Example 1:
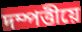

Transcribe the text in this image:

দম্পত্তীয়ে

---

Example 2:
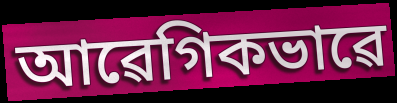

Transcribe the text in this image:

আৱেগিকভাৱে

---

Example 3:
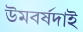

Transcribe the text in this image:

উমবৰ্ষদাই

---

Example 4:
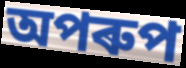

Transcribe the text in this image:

অপৰুপ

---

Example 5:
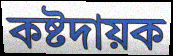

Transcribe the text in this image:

কষ্টদায়ক